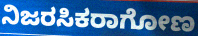
ನಿಜರಸಿಕರಾಗೋಣ